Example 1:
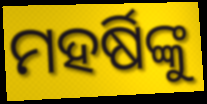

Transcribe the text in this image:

ମହର୍ଷିଙ୍କୁ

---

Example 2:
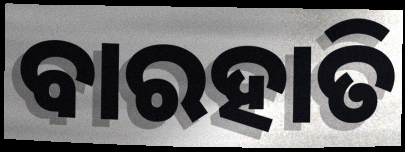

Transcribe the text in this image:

ବାରହାତି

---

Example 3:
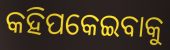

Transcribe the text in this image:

କହିପକେଇବାକୁ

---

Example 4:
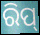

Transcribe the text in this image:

ରିପ୍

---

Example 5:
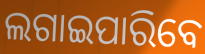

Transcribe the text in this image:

ଲଗାଇପାରିବେ